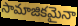
సామాజికమైనా